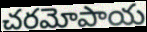
చరమోపాయ